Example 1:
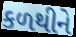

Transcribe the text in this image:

કળથીને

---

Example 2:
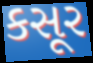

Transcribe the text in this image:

કસૂર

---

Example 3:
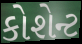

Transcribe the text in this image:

કોશેન્ટ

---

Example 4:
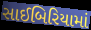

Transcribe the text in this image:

સાઈબિરિયામાં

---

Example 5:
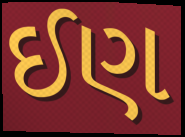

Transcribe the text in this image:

ઈણ